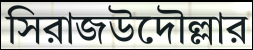
সিরাজউদৌল্লার